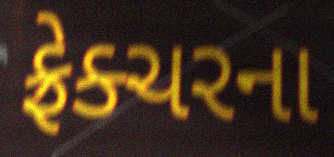
ફ્રેક્ચરના